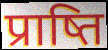
प्राष्ति